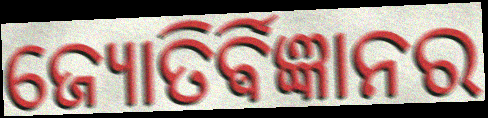
ଜ୍ୟୋତିର୍ଵିଜ୍ଞାନର